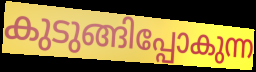
കുടുങ്ങിപ്പോകുന്ന